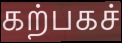
கற்பகச்